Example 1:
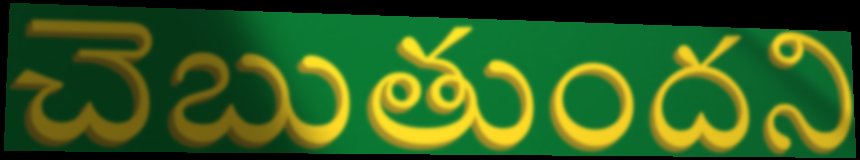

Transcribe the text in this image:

చెబుతుందని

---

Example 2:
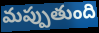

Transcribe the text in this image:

మప్పుతుంది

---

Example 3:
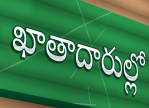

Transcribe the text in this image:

ఖాతాదారుల్లో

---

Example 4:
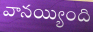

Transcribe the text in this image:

వానయ్యింది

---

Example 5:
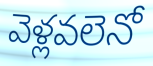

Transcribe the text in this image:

వెళ్లవలెనో